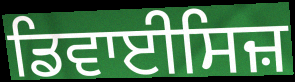
ਡਿਵਾਈਸਿਜ਼